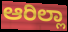
ಆರಿಲ್ಲಾ